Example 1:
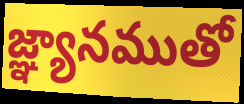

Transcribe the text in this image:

జ్ఞ్యానముతో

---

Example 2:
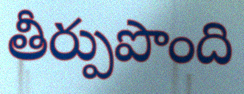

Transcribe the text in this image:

తీర్పుపొంది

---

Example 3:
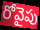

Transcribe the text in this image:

రోవైపు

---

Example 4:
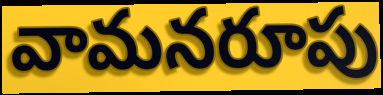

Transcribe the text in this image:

వామనరూపు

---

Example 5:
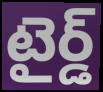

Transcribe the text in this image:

టైర్డ్